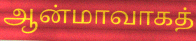
ஆன்மாவாகத்